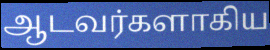
ஆடவர்களாகிய